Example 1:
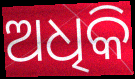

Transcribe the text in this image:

ଅଧିକି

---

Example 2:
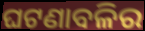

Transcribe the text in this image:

ଘଟଣାବଳିର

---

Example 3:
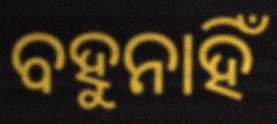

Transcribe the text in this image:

ବହୁନାହିଁ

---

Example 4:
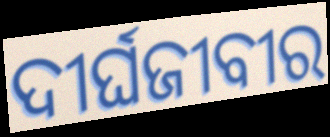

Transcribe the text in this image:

ଦୀର୍ଘଜୀବୀର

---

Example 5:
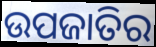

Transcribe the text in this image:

ଉପଜାତିର